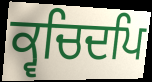
ਕ੍ਵਚਿਦਪਿ